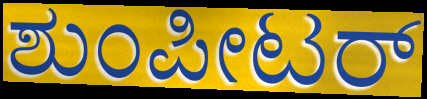
ಶುಂಪೀಟರ್